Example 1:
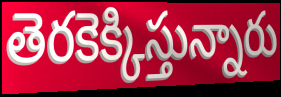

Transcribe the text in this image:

తెరకెక్కిస్తున్నారు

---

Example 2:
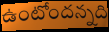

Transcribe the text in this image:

ఉంటోందన్నది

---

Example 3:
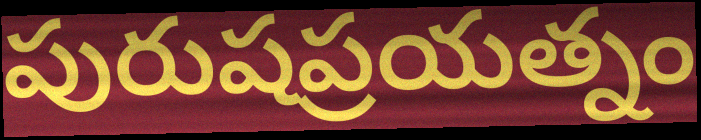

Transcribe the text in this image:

పురుషప్రయత్నం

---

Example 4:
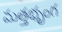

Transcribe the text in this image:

మత్తభృంగ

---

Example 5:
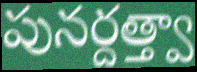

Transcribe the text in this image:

పునర్దత్త్వా